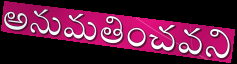
అనుమతించవని